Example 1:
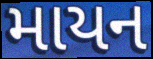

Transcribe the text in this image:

માયન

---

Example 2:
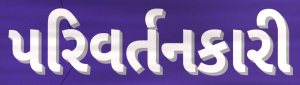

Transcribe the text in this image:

પરિવર્તનકારી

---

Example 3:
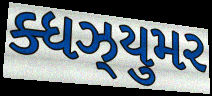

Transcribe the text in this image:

ક્ધઝ્યુમર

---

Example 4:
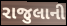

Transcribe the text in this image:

રાજુલાની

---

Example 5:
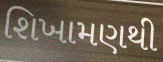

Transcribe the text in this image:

શિખામણથી